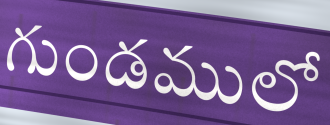
గుండములో